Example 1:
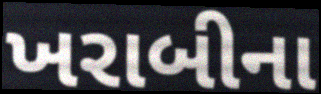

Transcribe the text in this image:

ખરાબીના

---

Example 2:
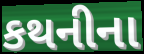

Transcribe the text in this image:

કથનીના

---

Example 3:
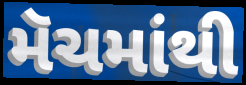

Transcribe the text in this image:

મૅચમાંથી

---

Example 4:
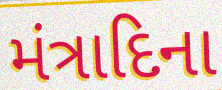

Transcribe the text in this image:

મંત્રાદિના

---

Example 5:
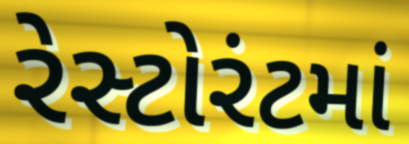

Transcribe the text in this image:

રેસ્ટોરંટમાં